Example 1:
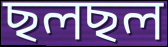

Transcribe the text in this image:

ছলছল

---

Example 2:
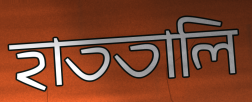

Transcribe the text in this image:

হাততালি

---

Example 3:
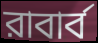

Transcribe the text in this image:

রাবার্ব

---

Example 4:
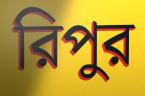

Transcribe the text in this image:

রিপুর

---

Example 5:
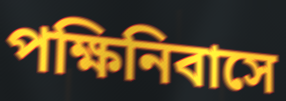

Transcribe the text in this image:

পক্ষিনিবাসে